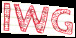
IWG